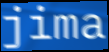
jima